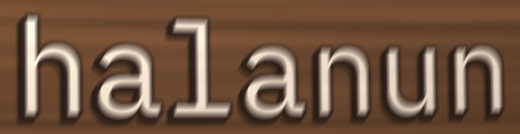
halanun